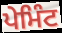
ਪੇਮਿੰਟ